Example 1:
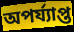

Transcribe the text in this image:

অপৰ্য্যাপ্ত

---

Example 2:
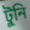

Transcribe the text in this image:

টুনি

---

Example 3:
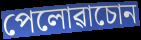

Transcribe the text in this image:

পেলোৱাচোন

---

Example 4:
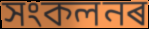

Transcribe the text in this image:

সংকলনৰ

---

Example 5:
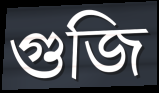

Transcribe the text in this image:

গুজি